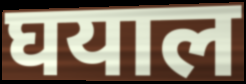
घयाल